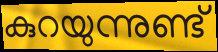
കുറയുന്നുണ്ട്